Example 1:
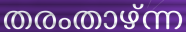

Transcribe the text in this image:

തരംതാഴ്ന്ന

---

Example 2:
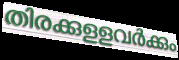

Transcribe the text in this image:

തിരക്കുളളവർക്കും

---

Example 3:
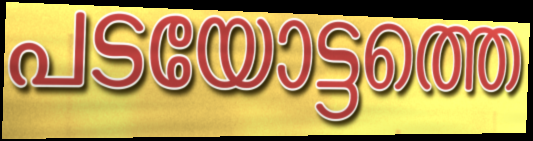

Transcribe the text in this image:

പടയോട്ടത്തെ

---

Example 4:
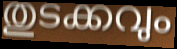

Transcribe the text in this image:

തുടക്കവും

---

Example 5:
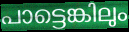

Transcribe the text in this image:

പാട്ടെങ്കിലും